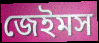
জেইমস